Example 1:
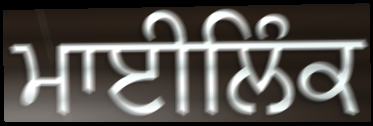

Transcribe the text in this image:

ਮਾਈਲਿੰਕ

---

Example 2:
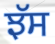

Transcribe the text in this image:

ਝੱਸ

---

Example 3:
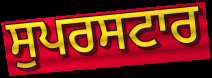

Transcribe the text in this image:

ਸੁਪਰਸਟਾਰ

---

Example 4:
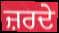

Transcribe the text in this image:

ਜ਼ਰਦੇ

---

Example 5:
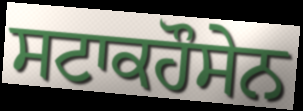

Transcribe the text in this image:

ਸਟਾਕਹੌਸੇਨ